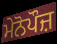
ਮੇਨੋਪੌਜ਼